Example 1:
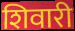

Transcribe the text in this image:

शिवारी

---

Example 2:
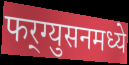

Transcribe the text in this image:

फर्ग्युसनमध्ये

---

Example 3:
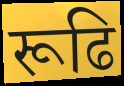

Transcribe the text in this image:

रूढि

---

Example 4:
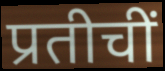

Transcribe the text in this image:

प्रतीचीं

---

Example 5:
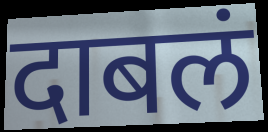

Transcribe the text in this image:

दाबलं